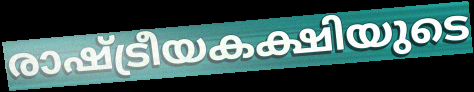
രാഷ്ട്രീയകക്ഷിയുടെ